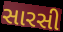
સારસી